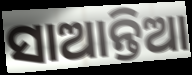
ସାଆନ୍ତିଆ